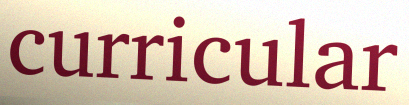
curricular